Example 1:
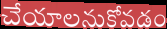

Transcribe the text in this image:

చేయాలనుకోవడం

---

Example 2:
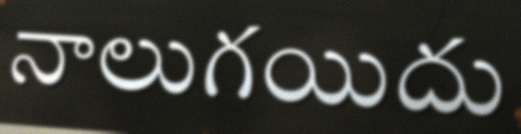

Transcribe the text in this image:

నాలుగయిదు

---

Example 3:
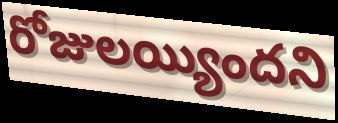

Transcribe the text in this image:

రోజులయ్యిందని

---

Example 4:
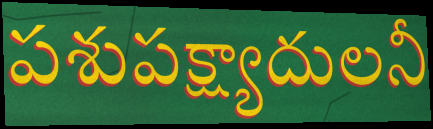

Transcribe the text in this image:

పశుపక్ష్యాదులనీ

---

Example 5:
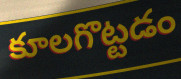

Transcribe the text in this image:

కూలగొట్టడం